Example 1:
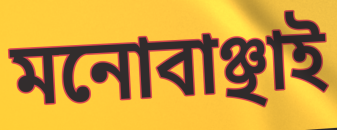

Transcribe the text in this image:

মনোবাঞ্ছাই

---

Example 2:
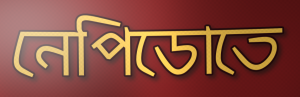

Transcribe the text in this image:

নেপিডোতে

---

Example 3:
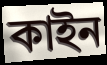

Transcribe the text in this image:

কাইন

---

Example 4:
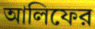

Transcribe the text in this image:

আলিফের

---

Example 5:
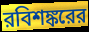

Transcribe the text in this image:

রবিশঙ্করের